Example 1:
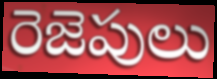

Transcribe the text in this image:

రెజెపులు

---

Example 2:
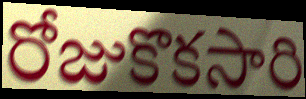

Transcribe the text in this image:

రోజుకొకసారి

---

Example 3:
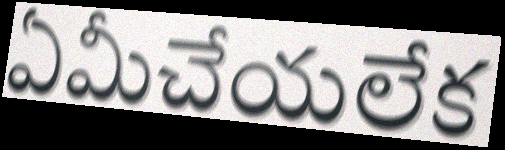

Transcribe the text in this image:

ఏమీచేయలేక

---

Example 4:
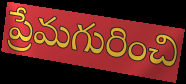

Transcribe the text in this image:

ప్రేమగురించి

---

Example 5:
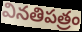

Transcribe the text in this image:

వినతిపత్రం